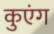
कुएंग